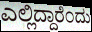
ಎಲ್ಲಿದ್ದಾರೆಂದು